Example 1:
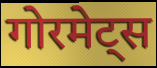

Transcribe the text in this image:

गोरमेट्स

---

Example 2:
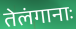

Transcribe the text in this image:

तेलंगानाः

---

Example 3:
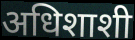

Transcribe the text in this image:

अधिशाशी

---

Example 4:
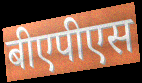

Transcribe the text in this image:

बीएपीएस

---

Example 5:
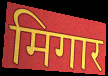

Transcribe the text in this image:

मिगार